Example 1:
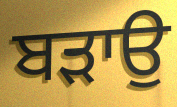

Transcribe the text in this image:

ਬਡ਼ਾਉ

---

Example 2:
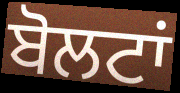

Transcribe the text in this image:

ਬੋਲਟਾਂ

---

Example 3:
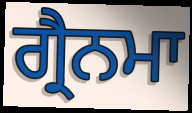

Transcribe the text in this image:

ਗ੍ਰੈਨਮਾ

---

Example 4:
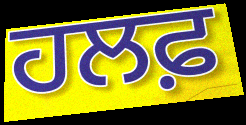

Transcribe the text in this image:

ਹਲਫ਼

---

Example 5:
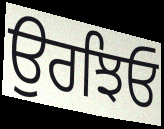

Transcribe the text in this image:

ਉਰਝਿਓ